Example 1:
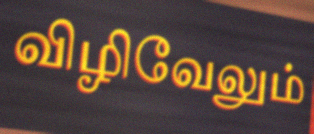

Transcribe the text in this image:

விழிவேலும்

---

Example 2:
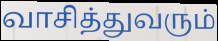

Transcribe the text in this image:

வாசித்துவரும்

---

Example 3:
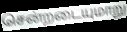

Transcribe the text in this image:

சென்றடையுமாறு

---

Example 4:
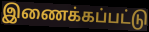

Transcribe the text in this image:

இணைக்கப்பட்டு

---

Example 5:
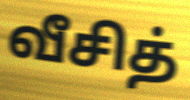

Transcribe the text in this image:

வீசித்